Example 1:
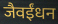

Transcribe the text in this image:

जैवईंधन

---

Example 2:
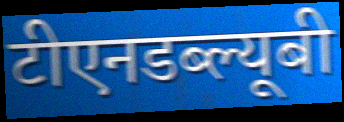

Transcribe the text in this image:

टीएनडब्ल्यूबी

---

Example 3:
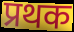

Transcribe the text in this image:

प्रथक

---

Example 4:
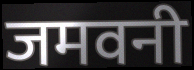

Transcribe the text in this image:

जमवनी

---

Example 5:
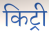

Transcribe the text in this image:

किट्री